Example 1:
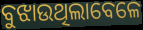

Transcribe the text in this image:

ବୁଝାଉଥିଲାବେଳେ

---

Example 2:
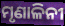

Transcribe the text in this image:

ମୃଣାଳିନୀ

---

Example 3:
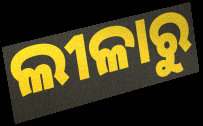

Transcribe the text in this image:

ଲୀଳାରୁ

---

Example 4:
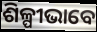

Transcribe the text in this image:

ଶିଳ୍ପୀଭାବେ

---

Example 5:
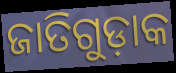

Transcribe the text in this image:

ଜାତିଗୁଡ଼ାକ